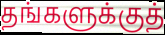
தங்களுக்குத்